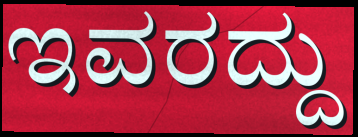
ಇವರದ್ದು